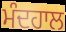
ਮੰਦਹਾਲ